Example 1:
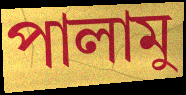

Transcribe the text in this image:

পালামু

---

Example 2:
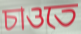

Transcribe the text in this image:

চাওতে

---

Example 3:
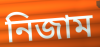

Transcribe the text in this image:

নিজাম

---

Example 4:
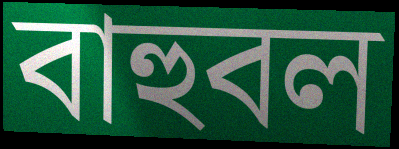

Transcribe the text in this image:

বাহুবল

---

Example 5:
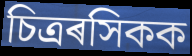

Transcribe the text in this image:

চিত্ৰৰসিকক